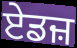
ਏਡਜ਼